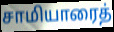
சாமியாரைத்